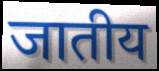
जातीय